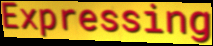
Expressing